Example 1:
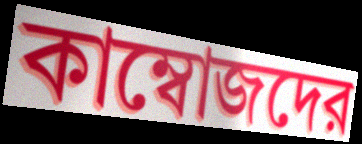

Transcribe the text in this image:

কাম্বোজদের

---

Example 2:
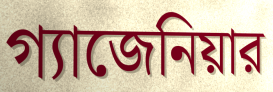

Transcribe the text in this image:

গ্যাজেনিয়ার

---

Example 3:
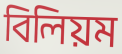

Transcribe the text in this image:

বিলিয়ম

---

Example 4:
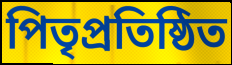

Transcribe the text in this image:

পিতৃপ্রতিষ্ঠিত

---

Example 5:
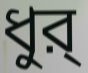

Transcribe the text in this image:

ধুর্